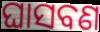
ଘାସବଣ